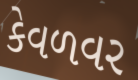
કેવળવર